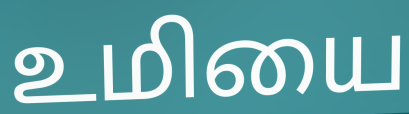
உமியை